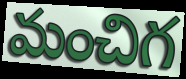
మంచిగ